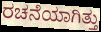
ರಚನೆಯಾಗಿತ್ತು